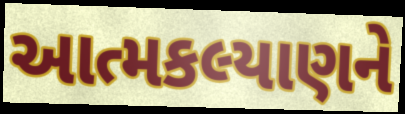
આત્મકલ્યાણને